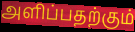
அளிப்பதற்கும்